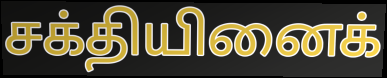
சக்தியினைக்